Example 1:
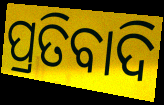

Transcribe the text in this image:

ପ୍ରତିବାଦି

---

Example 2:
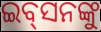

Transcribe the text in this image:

ଇବ୍‌ସନଙ୍କୁ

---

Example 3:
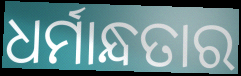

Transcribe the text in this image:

ଧର୍ମାନ୍ଧତାର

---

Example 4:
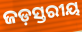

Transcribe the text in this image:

ଜଡ଼ସ୍ତରୀୟ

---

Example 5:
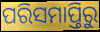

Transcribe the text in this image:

ପରିସମାପ୍ତିରୁ